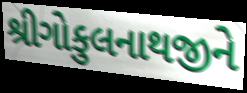
શ્રીગોકુલનાથજીને